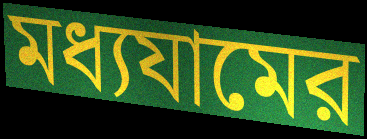
মধ্যযামের